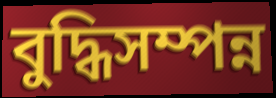
বুদ্ধিসম্পন্ন